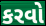
કરવો